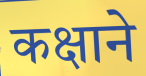
कक्षाने